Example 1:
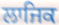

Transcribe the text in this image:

ਲਾਜਿਕ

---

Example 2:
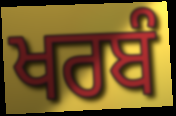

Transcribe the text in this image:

ਖਰਬੰ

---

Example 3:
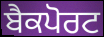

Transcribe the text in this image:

ਬੈਕਪੋਰਟ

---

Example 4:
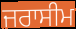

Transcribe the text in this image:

ਜਰਾਸੀਮ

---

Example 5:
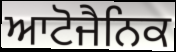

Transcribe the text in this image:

ਆਟੋਜੈਨਿਕ